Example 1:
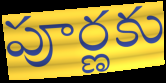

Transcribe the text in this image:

పూర్ణకు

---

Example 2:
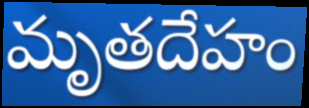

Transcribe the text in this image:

మృతదేహం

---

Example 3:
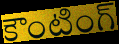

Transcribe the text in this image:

కౌంటింగ్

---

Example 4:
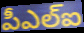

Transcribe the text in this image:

పీఎల్ఐ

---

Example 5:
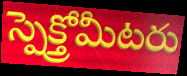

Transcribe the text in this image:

స్పెక్త్రోమీటరు